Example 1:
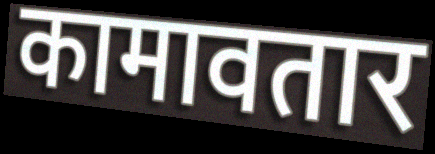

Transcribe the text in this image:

कामावतार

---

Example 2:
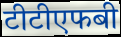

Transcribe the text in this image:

टीटीएफबी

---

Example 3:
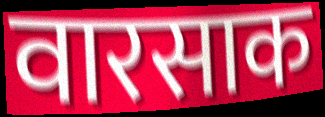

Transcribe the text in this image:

वारसाक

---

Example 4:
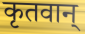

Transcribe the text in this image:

कृतवान्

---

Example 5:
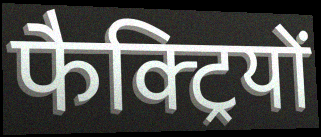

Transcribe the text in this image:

फैक्ट्रियों